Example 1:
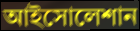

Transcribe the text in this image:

আইসোলেশান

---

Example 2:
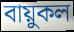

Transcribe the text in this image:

বায়ুকল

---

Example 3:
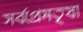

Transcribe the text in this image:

সর্বপ্রেমতৃষা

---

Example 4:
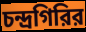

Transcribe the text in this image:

চন্দ্রগিরির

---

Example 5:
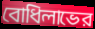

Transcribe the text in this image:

বোধিলাভের